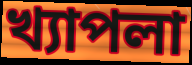
খ্যাপলা